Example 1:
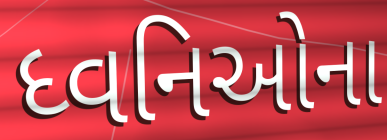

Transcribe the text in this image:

ધ્વનિઓના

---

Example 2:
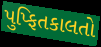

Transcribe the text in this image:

પુપ્ફિતકાલતો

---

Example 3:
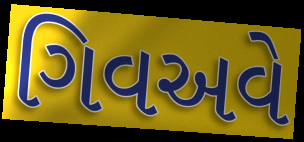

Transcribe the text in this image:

ગિવઅવે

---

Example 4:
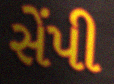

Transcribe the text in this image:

સેંપી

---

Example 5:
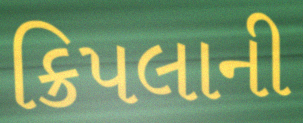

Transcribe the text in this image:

ક્રિપલાની